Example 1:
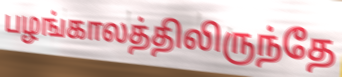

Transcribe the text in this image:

பழங்காலத்திலிருந்தே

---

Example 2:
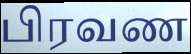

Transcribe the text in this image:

பிரவண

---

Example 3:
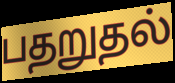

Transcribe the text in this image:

பதறுதல்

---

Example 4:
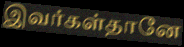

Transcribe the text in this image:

இவர்கள்தானே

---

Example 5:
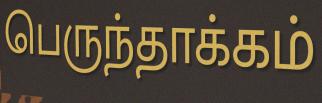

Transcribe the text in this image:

பெருந்தாக்கம்